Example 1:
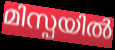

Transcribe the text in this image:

മിസ്പയിൽ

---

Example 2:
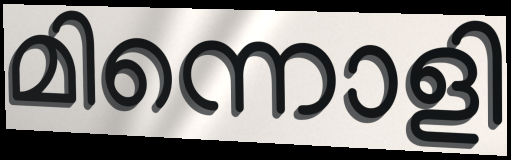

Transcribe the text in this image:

മിന്നൊളി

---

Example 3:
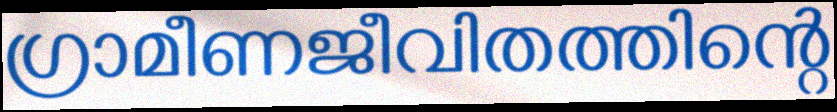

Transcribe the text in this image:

ഗ്രാമീണജീവിതത്തിന്റെ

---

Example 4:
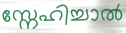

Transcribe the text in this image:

സ്നേഹിച്ചാൽ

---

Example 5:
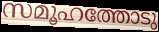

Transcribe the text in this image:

സമൂഹത്തോടു